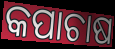
କପାଚାଷ